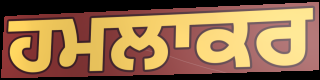
ਹਮਲਾਕਰ